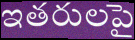
ఇతరులపై